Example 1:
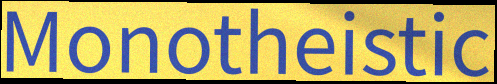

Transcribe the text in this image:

Monotheistic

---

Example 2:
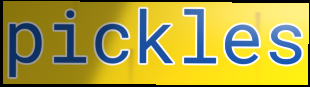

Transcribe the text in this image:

pickles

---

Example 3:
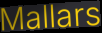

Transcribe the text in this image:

Mallars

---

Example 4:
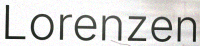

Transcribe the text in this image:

Lorenzen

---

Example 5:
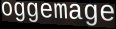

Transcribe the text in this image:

oggemage